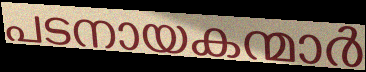
പടനായകന്മാർ